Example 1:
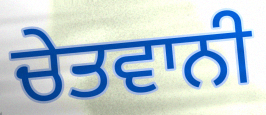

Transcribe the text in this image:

ਚੇਤਵਾਨੀ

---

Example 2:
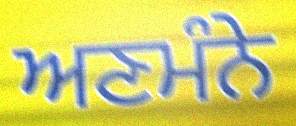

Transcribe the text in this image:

ਅਣਮੰਨੇ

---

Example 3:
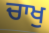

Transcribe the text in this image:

ਚਾਖੁ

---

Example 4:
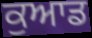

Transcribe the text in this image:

ਕੁਆਡ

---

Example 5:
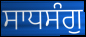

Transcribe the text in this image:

ਸਾਧਸੰਗੁ